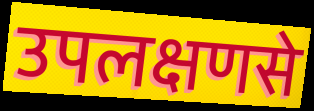
उपलक्षणसे